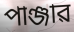
পাঞ্জাৱ